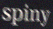
spiny